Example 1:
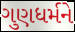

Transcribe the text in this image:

ગુણધર્મને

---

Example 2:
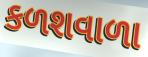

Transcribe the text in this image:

કળશવાળા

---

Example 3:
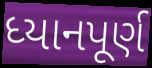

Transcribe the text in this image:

ધ્યાનપૂર્ણ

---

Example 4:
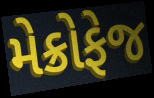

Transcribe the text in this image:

મેક્રોફેજ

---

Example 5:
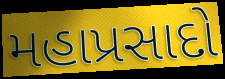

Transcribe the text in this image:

મહાપ્રસાદો